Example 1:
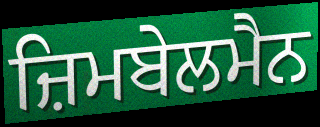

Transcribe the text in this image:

ਜ਼ਿਮਬੇਲਮੈਨ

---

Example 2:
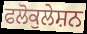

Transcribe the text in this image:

ਫਲੋਕੁਲੇਸ਼ਨ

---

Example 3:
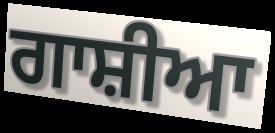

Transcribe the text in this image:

ਗਾਸ਼ੀਆ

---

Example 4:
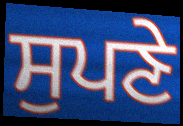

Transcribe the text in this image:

ਸੁਪਣੇ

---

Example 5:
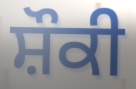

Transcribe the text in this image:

ਸ਼ੌਕੀ